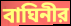
বাঘিনীর